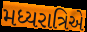
મધ્યરાત્રિએ